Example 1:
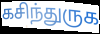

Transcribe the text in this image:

கசிந்துருக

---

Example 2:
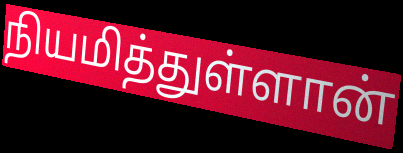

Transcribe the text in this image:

நியமித்துள்ளான்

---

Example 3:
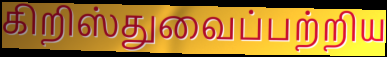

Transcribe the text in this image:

கிறிஸ்துவைப்பற்றிய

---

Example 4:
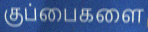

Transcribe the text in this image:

குப்பைகளை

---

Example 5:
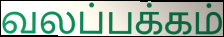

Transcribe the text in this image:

வலப்பக்கம்